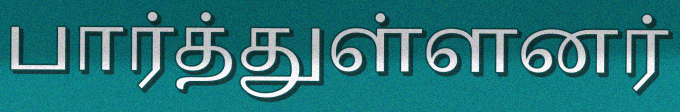
பார்த்துள்ளனர்